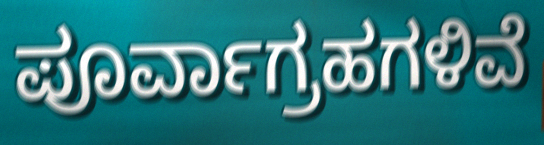
ಪೂರ್ವಾಗ್ರಹಗಳಿವೆ